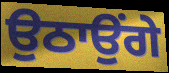
ਉਠਾਉਂਗੇ